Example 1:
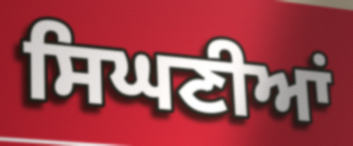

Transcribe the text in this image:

ਸਿਘਣੀਆਂ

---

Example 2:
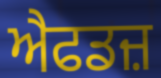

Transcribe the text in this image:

ਐਫਡਜ਼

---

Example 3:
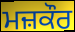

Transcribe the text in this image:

ਮਜ਼ਕੌਰ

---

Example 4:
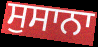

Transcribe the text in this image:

ਸੁਸਾਨਾ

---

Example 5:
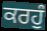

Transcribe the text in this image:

ਕਰਹੁੰ